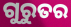
ଗୁରୁତର